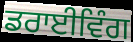
ਡਰਾਈਵਿੰਗ